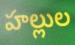
హల్లుల